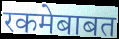
रकमेबाबत